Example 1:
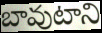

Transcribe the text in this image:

బావుటాని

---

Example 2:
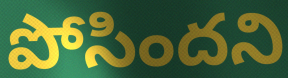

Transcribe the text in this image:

పోసిందని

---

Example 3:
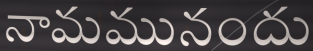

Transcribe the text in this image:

నామమునందు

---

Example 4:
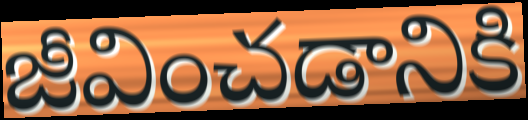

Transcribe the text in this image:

జీవించడానికి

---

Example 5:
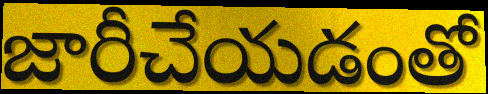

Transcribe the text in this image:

జారీచేయడంతో